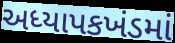
અધ્યાપકખંડમાં